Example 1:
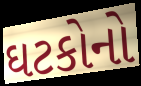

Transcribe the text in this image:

ઘટકોનો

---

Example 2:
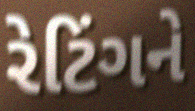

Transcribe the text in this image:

રેટિંગને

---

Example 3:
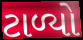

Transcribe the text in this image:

ટાળ્યો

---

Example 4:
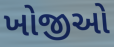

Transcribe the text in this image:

ખોજીઓ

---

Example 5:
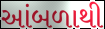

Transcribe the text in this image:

આંબળાથી